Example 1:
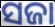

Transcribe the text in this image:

ସଜା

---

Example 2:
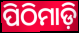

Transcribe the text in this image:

ପିଠିମାଡ଼ି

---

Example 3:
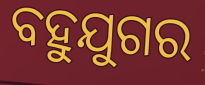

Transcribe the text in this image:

ବହୁଯୁଗର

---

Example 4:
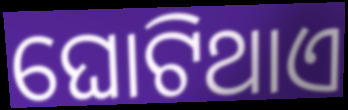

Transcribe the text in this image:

ଘୋଟିଥାଏ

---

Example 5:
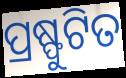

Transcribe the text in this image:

ପ୍ରଷ୍ଫୁଟିତ